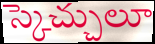
స్కెచ్చులూ